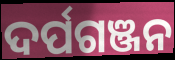
ଦର୍ପଗଞ୍ଜନ